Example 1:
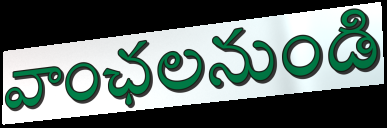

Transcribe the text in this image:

వాంఛలనుండి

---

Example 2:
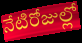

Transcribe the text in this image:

నేటిరోజుల్లో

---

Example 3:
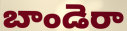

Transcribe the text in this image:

బాండెరా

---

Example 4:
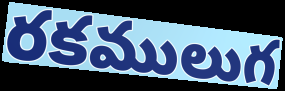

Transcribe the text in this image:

రకములుగ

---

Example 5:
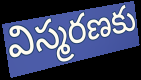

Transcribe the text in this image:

విస్మరణకు